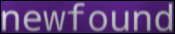
newfound